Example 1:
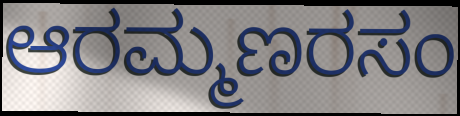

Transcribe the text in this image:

ಆರಮ್ಮಣರಸಂ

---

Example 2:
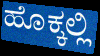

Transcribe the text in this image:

ಹೊಕ್ಕಲ್ಲಿ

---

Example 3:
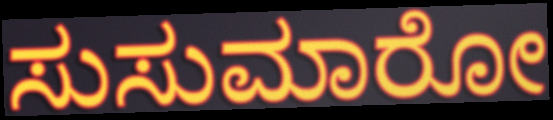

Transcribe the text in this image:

ಸುಸುಮಾರೋ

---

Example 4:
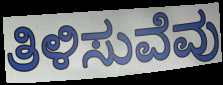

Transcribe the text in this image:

ತಿಳಿಸುವೆವು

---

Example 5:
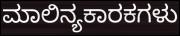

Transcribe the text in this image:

ಮಾಲಿನ್ಯಕಾರಕಗಳು